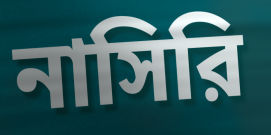
নাসিরি